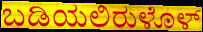
ಬಡಿಯಲಿರುಳೊಳ್